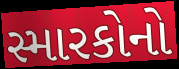
સ્મારકોનો